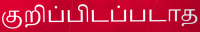
குறிப்பிடப்படாத